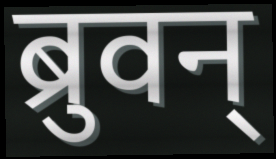
ब्रुवन्